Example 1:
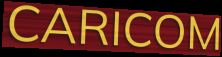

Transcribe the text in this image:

CARICOM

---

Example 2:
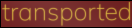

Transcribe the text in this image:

transported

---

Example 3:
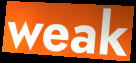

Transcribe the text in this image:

weak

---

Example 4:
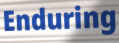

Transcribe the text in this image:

Enduring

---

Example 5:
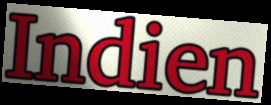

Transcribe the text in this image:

Indien